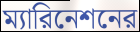
ম্যারিনেশনের